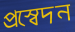
প্রস্বেদন